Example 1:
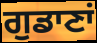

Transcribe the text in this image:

ਗੁਡਾਣਾਂ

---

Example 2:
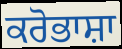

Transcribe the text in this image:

ਕਰੋਭਾਸ਼ਾ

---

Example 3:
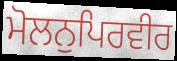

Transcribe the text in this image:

ਮੋਲਨੁਪਿਰਵੀਰ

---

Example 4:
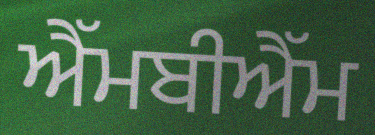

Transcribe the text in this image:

ਐੱਮਬੀਐੱਮ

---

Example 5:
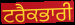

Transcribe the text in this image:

ਟਰੈਕਭਾਰੀ